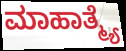
ಮಾಹಾತ್ಮ್ಯೆ